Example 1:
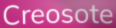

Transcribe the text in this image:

Creosote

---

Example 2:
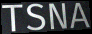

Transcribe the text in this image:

TSNA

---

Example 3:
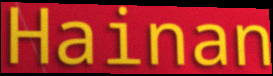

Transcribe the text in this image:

Hainan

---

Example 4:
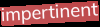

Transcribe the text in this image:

impertinent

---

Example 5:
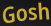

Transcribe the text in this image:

Gosh